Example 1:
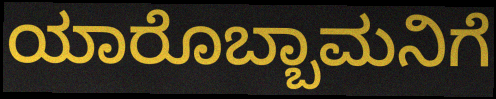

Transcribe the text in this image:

ಯಾರೊಬ್ಬಾಮನಿಗೆ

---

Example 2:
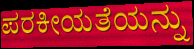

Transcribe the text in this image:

ಪರಕೀಯತೆಯನ್ನು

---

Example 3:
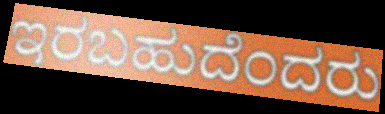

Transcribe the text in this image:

ಇರಬಹುದೆಂದರು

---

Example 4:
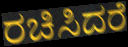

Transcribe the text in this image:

ರಚಿಸಿದರೆ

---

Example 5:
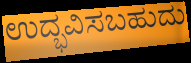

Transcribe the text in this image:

ಉದ್ಭವಿಸಬಹುದು